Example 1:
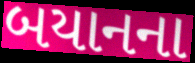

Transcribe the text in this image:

બયાનના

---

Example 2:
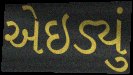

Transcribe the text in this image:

એઇડ્યું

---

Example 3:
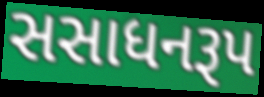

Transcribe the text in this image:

સસાધનરૂપ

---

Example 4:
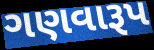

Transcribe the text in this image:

ગણવારૂપ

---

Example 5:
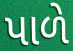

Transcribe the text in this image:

પાળે